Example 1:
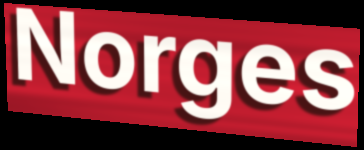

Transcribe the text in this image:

Norges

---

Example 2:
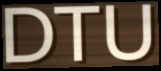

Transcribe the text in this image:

DTU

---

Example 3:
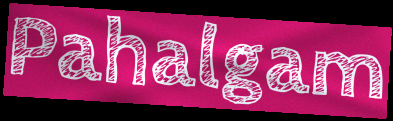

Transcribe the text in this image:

Pahalgam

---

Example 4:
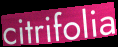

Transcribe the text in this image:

citrifolia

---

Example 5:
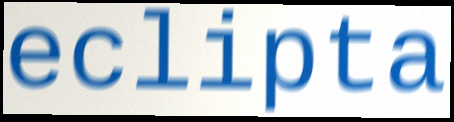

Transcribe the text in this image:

eclipta